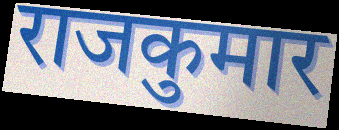
राजकुमार